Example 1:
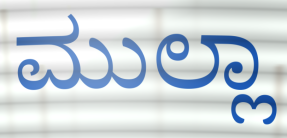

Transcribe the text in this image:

ಮುಲ್ಲಾ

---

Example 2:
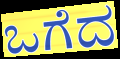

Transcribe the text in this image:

ಒಗೆದ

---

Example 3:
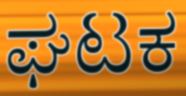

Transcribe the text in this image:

ಘಟಕ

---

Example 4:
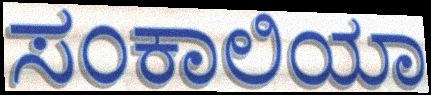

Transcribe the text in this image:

ಸಂಕಾಲಿಯಾ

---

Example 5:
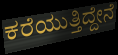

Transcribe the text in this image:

ಕರೆಯುತ್ತಿದ್ದೇನೆ